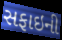
સફાઇની